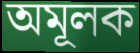
অমূলক